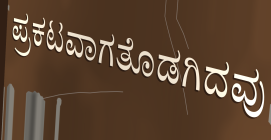
ಪ್ರಕಟವಾಗತೊಡಗಿದವು